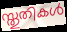
സ്തുതികൾ